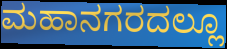
ಮಹಾನಗರದಲ್ಲೂ